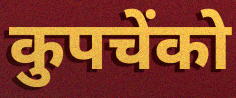
कुपचेंको